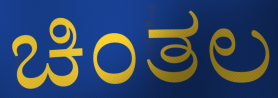
ಚಿಂತಲ